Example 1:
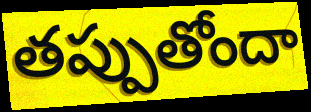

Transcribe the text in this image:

తప్పుతోందా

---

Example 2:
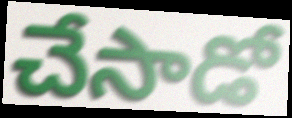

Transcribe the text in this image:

చేసాడో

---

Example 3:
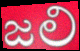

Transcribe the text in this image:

జలి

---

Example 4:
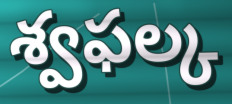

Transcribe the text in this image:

శ్వఫల్క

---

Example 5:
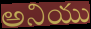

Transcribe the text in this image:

అనియు